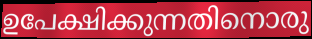
ഉപേക്ഷിക്കുന്നതിനൊരു